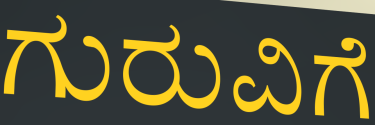
ಗುರುವಿಗೆ